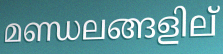
മണ്ഡലങ്ങളില്